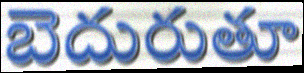
బెదురుతూ